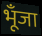
भूँजा